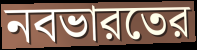
নবভারতের